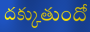
దక్కుతుందో